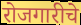
रोजगारीचे